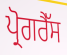
ਪ੍ਰੋਗਰੈੱਸ